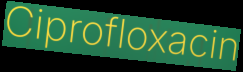
Ciprofloxacin